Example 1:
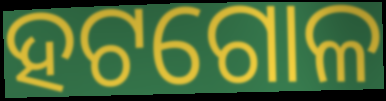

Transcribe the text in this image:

ହଟଗୋଳ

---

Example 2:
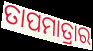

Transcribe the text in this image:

ତାପମାତ୍ରାର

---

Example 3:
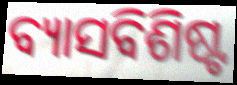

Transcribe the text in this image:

ବ୍ୟାସବିଶିଷ୍ଟ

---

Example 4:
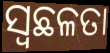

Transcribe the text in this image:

ସ୍ଵଛଳତା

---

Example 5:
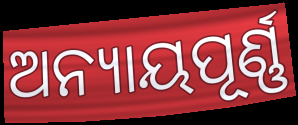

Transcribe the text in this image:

ଅନ୍ୟାୟପୂର୍ଣ୍ଣ